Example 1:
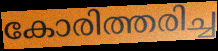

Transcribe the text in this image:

കോരിത്തരിച്ച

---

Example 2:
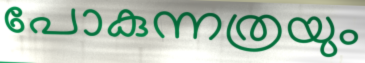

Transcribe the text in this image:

പോകുന്നത്രയും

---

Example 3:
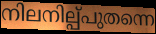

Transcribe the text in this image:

നിലനില്പ്പുതന്നെ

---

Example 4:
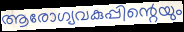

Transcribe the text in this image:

ആരോഗ്യവകുപ്പിന്റെയും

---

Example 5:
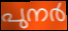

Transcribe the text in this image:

പുനർ